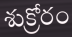
శుక్రోరం